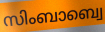
സിംബാബ്വെ